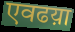
एवढय़ा